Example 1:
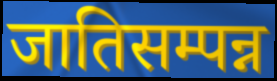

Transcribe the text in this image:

जातिसम्पन्न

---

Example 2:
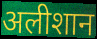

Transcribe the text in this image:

अलीशान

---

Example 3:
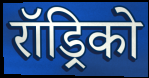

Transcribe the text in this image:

रॉड्रिको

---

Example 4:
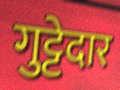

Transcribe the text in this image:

गुट्टेदार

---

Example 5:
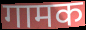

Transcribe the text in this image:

गामक